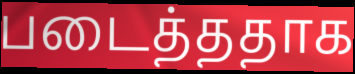
படைத்ததாக